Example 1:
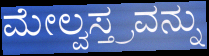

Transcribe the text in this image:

ಮೇಲ್ವಸ್ತ್ರವನ್ನು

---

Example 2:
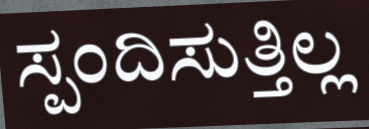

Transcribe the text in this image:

ಸ್ಪಂದಿಸುತ್ತಿಲ್ಲ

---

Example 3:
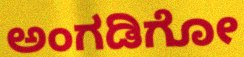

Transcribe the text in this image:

ಅಂಗಡಿಗೋ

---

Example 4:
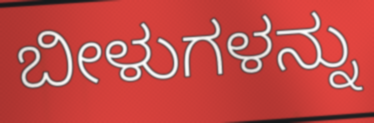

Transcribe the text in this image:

ಬೀಳುಗಳನ್ನು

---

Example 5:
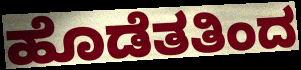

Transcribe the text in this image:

ಹೊಡೆತತಿಂದ